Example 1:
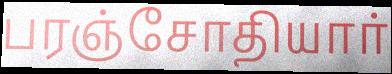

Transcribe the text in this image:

பரஞ்சோதியார்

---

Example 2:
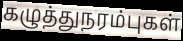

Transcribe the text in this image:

கழுத்துநரம்புகள்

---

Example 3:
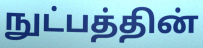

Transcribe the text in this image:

நுட்பத்தின்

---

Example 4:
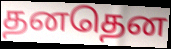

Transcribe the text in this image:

தனதென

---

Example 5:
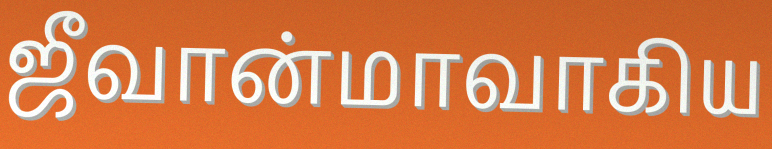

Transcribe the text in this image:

ஜீவான்மாவாகிய